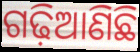
ଗଢ଼ିଆଣିଛି